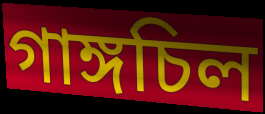
গাঙ্গচিল